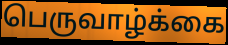
பெருவாழ்க்கை